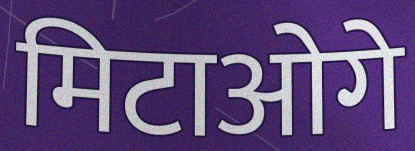
मिटाओगे